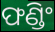
ଫଣ୍ଡିଂ